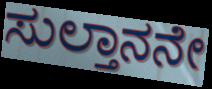
ಸುಲ್ತಾನನೇ